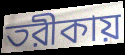
তরীকায়